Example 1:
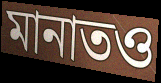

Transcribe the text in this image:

মানাতও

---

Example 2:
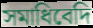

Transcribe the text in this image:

সমাধিবেদি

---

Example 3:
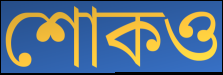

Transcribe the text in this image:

শোকও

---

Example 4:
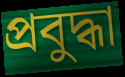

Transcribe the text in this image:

প্রবুদ্ধা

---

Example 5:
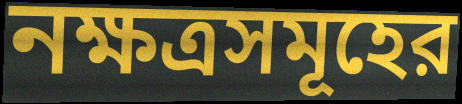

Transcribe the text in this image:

নক্ষত্রসমূহের